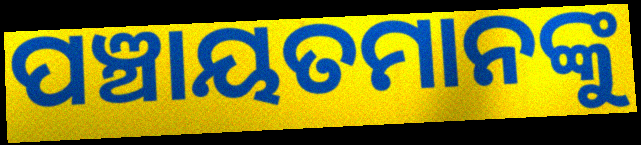
ପଞ୍ଚାୟତମାନଙ୍କୁ